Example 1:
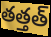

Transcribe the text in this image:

తత్తత్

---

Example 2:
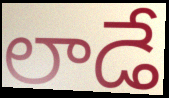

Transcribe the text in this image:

లాడే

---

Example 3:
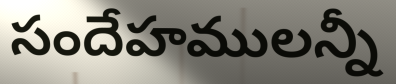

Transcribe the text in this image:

సందేహములన్నీ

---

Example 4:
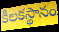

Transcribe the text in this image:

కీలకస్థానం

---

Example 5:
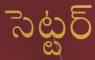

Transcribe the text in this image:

సెట్టర్